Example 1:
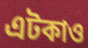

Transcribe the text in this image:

এটকাও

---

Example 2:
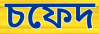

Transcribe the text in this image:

চফেদ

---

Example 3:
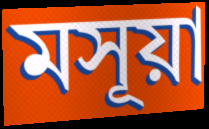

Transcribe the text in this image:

মসূয়া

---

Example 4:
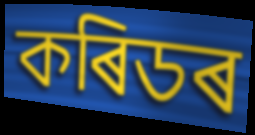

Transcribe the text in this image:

কৰিডৰ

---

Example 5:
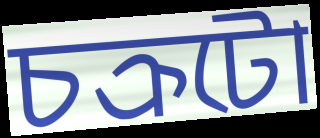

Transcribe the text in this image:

চক্ৰটো